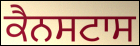
ਕੈਨਸਟਾਸ